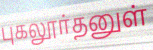
புகலூர்தனுள்